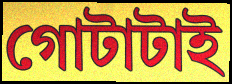
গোটাটাই